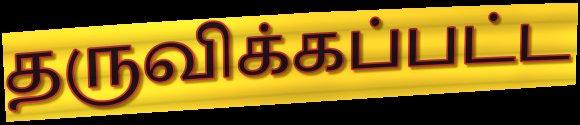
தருவிக்கப்பட்ட